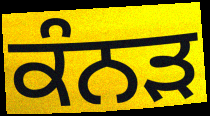
ਕੰਨਡ਼